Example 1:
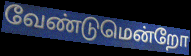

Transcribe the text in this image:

வேண்டுமென்றோ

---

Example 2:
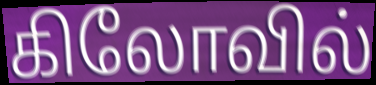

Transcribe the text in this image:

கிலோவில்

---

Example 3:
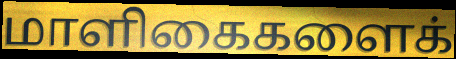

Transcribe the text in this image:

மாளிகைகளைக்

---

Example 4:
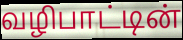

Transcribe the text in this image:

வழிபாட்டின்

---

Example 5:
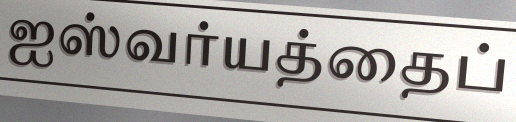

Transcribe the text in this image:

ஐஸ்வர்யத்தைப்